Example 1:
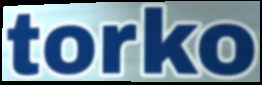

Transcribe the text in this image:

torko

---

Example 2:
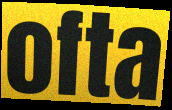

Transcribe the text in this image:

ofta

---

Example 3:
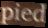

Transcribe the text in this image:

pied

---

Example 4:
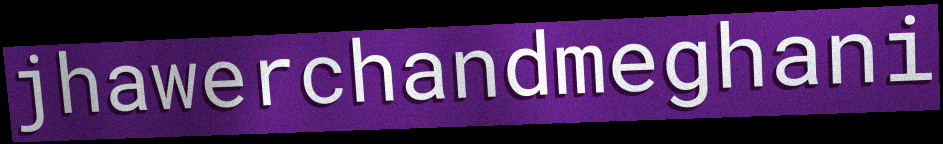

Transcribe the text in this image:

jhawerchandmeghani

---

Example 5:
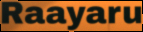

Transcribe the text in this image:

Raayaru